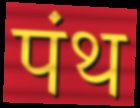
पंथ